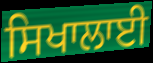
ਸਿਖਾਲਾਈ